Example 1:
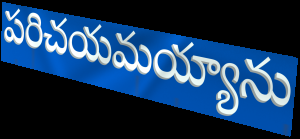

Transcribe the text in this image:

పరిచయమయ్యాను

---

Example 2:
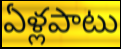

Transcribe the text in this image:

ఏళ్లపాటు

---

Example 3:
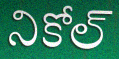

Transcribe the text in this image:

నికోల్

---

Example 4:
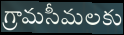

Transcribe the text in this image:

గ్రామసీమలకు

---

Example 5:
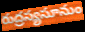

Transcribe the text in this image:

రుద్రస్యసూనుం